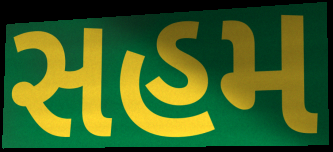
સહમ